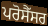
ਪਰੋਸੈੱਸਰ